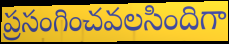
ప్రసంగించవలసిందిగా